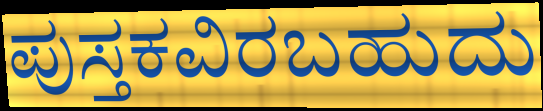
ಪುಸ್ತಕವಿರಬಹುದು